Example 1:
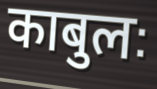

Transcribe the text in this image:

काबुलः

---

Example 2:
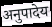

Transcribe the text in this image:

अनुपादेय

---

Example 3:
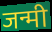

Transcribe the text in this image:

जन्मी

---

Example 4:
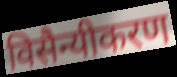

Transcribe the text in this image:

विसैन्यीकरण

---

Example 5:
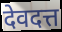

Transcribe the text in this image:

देवदत्त